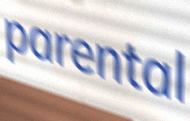
parental